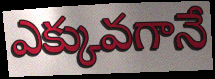
ఎక్కువగానే